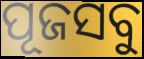
ପୂଜସବୁ